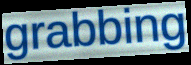
grabbing